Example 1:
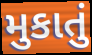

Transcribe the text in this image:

મુકાતું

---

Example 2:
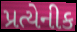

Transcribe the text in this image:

પ્રત્યેનીક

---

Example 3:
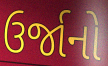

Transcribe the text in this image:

ઉર્જાનો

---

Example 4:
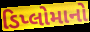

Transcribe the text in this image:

ડિપ્લોમાનો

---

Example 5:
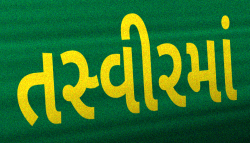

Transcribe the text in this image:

તસ્વીરમાં